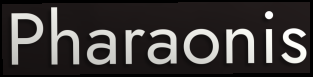
Pharaonis